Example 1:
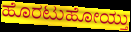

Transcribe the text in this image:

ಹೊರಟುಹೋಯ್ತು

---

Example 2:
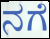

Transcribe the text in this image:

ನಗೆ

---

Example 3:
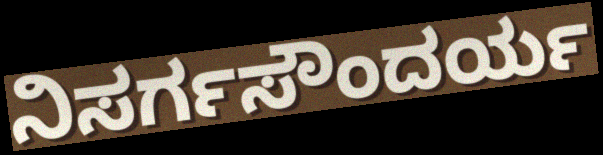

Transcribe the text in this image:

ನಿಸರ್ಗಸೌಂದರ್ಯ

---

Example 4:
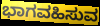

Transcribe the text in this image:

ಭಾಗವಹಿಸುವ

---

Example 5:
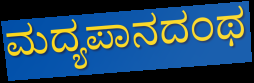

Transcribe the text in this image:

ಮದ್ಯಪಾನದಂಥ